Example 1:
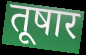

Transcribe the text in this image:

तूषार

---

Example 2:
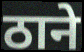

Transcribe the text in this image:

ठाने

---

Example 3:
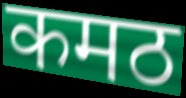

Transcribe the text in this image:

कमठ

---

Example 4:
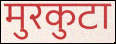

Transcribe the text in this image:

मुरकुटा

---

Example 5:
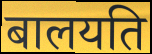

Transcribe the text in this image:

बालयति